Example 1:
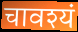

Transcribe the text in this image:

चावश्यं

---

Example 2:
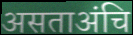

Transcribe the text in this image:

असताअंचि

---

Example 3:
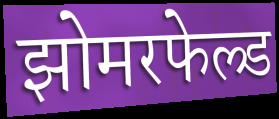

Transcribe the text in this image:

झोमरफेल्ड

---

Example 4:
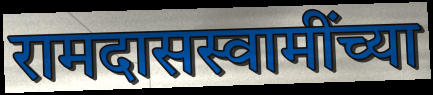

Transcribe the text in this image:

रामदासस्वामींच्या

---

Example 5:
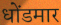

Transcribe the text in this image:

धोंडमार